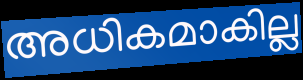
അധികമാകില്ല